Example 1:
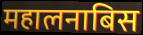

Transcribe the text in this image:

महालनाबिस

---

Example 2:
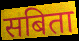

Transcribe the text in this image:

सबिता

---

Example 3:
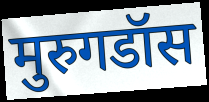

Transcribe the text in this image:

मुरुगडॉस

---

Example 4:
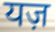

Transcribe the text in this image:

यज़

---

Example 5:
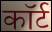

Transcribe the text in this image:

कॉर्ट